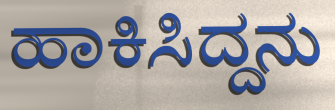
ಹಾಕಿಸಿದ್ದನು